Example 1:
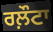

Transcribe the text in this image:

ਰਲ਼ੌਟਾ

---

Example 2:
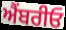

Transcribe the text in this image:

ਐੰਬਰੀਓ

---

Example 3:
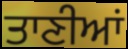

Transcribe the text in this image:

ਤਾਣੀਆਂ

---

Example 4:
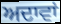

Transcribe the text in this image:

ਅਦਾਵਾਂ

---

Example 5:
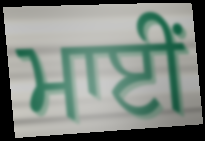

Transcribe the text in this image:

ਮਾਈਂ